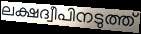
ലക്ഷദ്വീപിനടുത്ത്